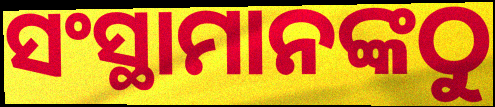
ସଂସ୍ଥାମାନଙ୍କଠୁ